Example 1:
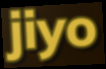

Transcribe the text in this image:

jiyo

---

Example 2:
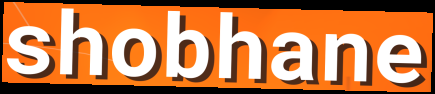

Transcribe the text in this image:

shobhane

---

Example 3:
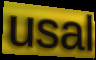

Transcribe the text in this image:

usal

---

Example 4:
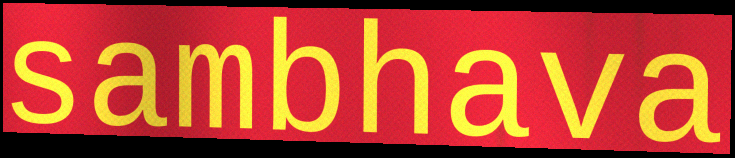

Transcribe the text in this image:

sambhava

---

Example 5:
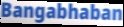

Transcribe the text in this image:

Bangabhaban